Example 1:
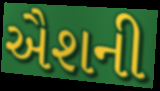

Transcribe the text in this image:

ઐશની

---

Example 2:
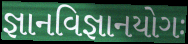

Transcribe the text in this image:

જ્ઞાનવિજ્ઞાનયોગઃ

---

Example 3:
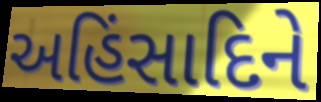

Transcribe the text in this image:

અહિંસાદિને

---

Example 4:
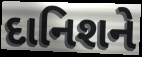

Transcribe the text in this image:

દાનિશને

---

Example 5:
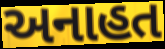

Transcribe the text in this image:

અનાહત